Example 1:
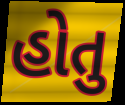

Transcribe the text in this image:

હોતુ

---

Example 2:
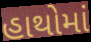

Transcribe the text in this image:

હાથોમાં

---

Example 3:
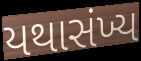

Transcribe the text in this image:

યથાસંખ્ય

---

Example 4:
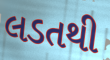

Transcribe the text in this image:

લડતથી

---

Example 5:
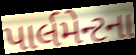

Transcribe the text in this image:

પાર્લમેન્ટના